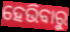
ହେଉିବାରୁ